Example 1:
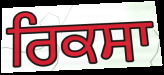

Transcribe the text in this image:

ਰਿਕਸਾ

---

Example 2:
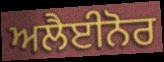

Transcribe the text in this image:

ਅਲੈਈਨੋਰ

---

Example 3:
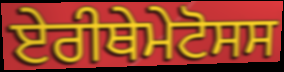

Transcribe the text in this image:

ਏਰੀਥੇਮੇਟੋਸਸ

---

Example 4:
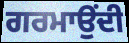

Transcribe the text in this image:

ਗਰਮਾਉਂਦੀ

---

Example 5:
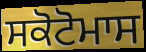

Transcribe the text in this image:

ਸਕੋਟੋਮਾਸ